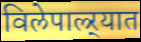
विलेपाल्र्यात